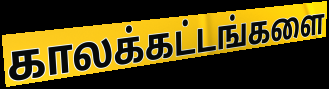
காலக்கட்டங்களை